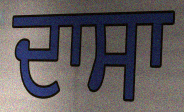
ਦਾਸਾ